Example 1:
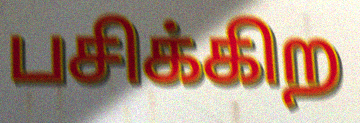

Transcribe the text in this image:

பசிக்கிற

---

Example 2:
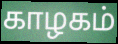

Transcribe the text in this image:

காழகம்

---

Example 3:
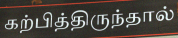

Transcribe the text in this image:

கற்பித்திருந்தால்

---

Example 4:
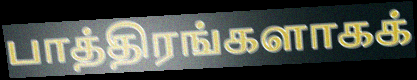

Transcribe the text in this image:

பாத்திரங்களாகக்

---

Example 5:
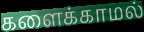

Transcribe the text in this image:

களைக்காமல்